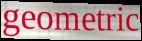
geometric